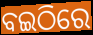
ବଇଠିରେ